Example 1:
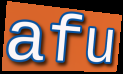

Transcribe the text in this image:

afu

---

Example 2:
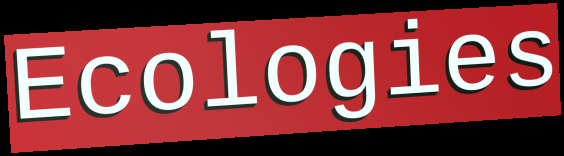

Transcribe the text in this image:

Ecologies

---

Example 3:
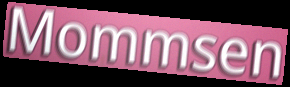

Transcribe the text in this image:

Mommsen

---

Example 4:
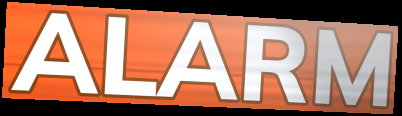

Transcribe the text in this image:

ALARM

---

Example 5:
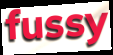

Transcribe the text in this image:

fussy